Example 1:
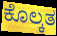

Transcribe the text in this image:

ಕೊಲ್ಕತ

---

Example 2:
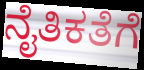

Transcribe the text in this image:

ನೈತಿಕತೆಗೆ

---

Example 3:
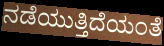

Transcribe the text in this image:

ನಡೆಯುತ್ತಿದೆಯಂತೆ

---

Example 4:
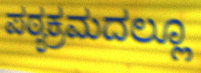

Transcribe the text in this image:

ಪಠ್ಯಕ್ರಮದಲ್ಲೂ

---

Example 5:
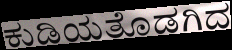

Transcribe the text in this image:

ಕುಡಿಯತೊಡಗಿದ